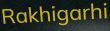
Rakhigarhi